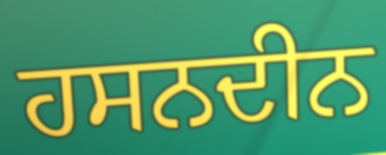
ਹਸਨਦੀਨ